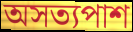
অসত্যপাশ